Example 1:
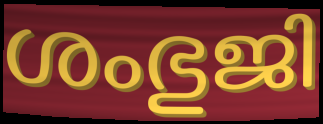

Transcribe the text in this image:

ശംഭുജി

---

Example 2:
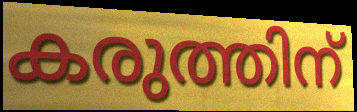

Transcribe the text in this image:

കരുത്തിന്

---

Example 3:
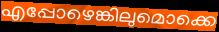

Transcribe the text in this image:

എപ്പോഴെങ്കിലുമൊക്കെ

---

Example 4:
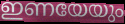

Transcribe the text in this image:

ഇണയേയും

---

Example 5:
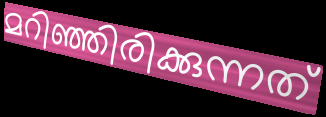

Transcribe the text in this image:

മറിഞ്ഞിരിക്കുന്നത്